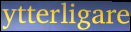
ytterligare